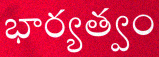
భార్యత్వం